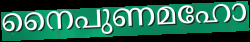
നൈപുണമഹോ